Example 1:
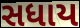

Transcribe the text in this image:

સધાય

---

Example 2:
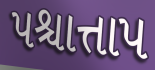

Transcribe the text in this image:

પશ્ચાત્તાપ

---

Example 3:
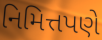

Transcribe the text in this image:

નિમિત્તપણે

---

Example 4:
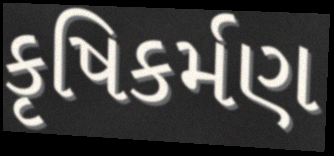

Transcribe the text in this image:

કૃષિકર્મણ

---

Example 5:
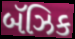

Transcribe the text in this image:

બૅઝિક